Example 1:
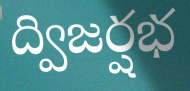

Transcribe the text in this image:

ద్విజర్షభ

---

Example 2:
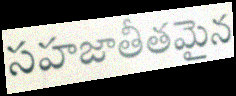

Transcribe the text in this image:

సహజాతీతమైన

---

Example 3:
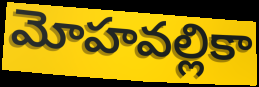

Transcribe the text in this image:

మోహవల్లికా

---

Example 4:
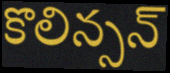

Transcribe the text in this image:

కొలిన్సన్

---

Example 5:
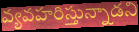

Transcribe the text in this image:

వ్యవహరిస్తున్నాడని